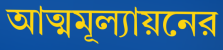
আত্মমূল্যায়নের